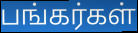
பங்கர்கள்